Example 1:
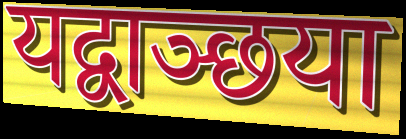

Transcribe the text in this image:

यद्वाञ्छया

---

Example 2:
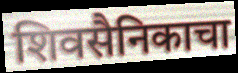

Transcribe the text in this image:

शिवसैनिकाचा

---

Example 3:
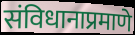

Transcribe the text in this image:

संविधानाप्रमाणे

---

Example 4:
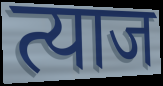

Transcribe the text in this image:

त्याज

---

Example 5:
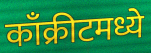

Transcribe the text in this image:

काँक्रीटमध्ये